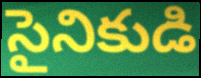
సైనికుడి